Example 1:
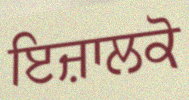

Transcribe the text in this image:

ਇਜ਼ਾਲਕੋ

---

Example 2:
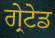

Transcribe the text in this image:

ਗ੍ਰੇਟੇਡ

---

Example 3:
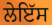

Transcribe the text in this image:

ਲੇਇੱਸ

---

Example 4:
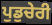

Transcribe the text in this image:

ਪੁਡੁਚੇਰੀ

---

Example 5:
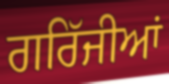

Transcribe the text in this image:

ਗਰਿੱਜੀਆਂ